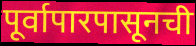
पूर्वापारपासूनची